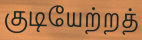
குடியேற்றத்